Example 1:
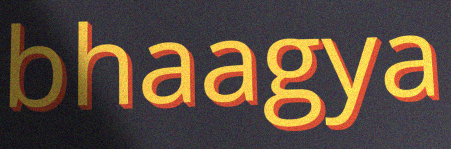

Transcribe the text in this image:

bhaagya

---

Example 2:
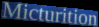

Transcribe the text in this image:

Micturition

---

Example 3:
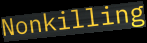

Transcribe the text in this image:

Nonkilling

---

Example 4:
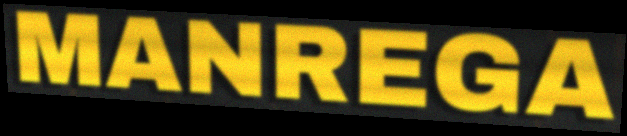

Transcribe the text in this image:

MANREGA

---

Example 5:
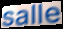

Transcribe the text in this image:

salle